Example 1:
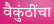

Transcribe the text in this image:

वैकुंठींचा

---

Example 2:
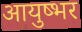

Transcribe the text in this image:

आयुष्भर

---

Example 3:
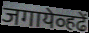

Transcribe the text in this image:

जगायेव्हढें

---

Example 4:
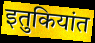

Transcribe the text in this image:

इतुकियांत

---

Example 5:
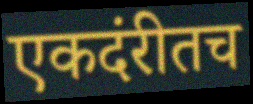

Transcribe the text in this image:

एकदंरीतच